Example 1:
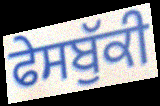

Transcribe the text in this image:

ਫੇਸਬੁੱਕੀ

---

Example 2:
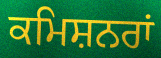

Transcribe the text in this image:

ਕਮਿਸ਼ਨਰਾਂ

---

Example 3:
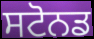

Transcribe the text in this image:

ਸਟੋਨਡ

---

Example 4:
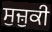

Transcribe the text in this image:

ਸੁਜ਼ੁਕੀ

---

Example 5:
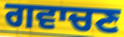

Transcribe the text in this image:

ਗਵਾਚਣ